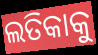
ଲତିକାକୁ